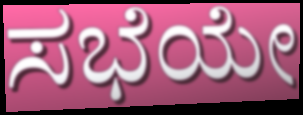
ಸಭೆಯೇ